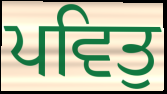
ਪਵਿਤੁ